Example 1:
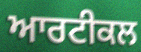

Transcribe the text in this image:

ਆਰਟੀਕਲ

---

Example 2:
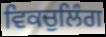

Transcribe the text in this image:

ਵਿਕਚੁਲਿੰਗ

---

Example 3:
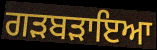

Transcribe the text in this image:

ਗੜਬੜਾਇਆ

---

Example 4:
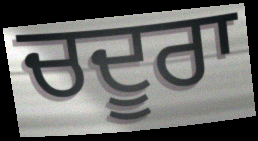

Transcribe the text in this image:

ਚਦੂਰਾ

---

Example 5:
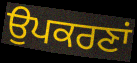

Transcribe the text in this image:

ਉਪਕਰਣਾਂ